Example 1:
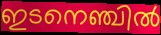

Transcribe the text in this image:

ഇടനെഞ്ചിൽ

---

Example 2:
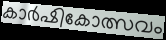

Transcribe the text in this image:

കാർഷികോത്സവം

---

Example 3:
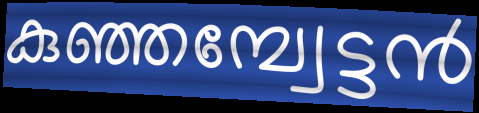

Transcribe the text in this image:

കുഞ്ഞമ്പ്വേട്ടൻ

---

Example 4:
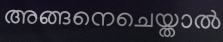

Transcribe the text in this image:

അങ്ങനെചെയ്താൽ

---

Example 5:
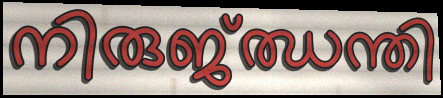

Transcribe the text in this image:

നിരുജ്ഝന്തി